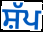
ਸ਼ੱਪ